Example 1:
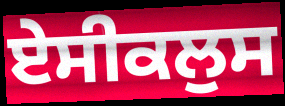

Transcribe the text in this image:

ਏਸੀਕਲੁਸ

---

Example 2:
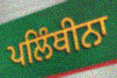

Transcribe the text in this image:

ਪਲਿੰਥੀਨਾ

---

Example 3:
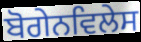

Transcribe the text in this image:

ਬੋਗੇਨਵਿਲੇਸ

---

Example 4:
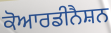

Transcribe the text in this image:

ਕੋਆਰਡੀਨੈਸ਼ਨ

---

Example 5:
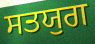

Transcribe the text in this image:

ਸਤਯੁਗ